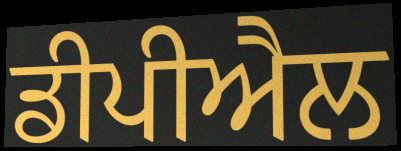
ਡੀਪੀਐਲ